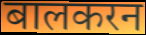
बालकरन